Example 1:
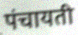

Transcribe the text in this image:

पंचायती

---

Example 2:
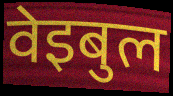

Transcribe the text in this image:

वेइबुल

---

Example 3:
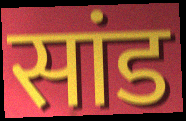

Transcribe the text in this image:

सांड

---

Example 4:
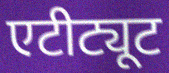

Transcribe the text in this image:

एटीट्यूट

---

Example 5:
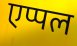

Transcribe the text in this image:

एप्पल